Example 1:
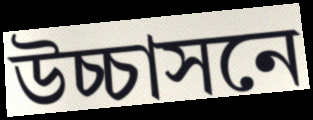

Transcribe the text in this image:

উচ্চাসনে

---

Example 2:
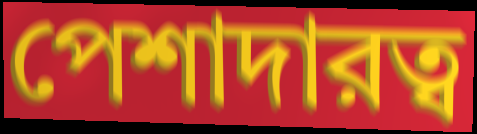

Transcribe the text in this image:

পেশাদারত্ব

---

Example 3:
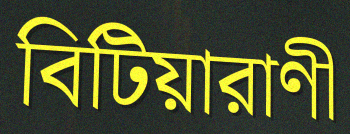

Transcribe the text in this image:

বিটিয়ারাণী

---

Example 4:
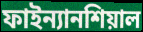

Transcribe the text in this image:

ফাইন্যানশিয়াল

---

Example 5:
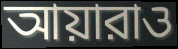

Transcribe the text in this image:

আয়ারাও